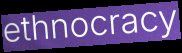
ethnocracy